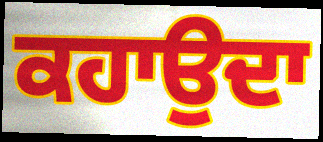
ਕਹਾਉਦਾ